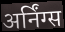
अर्निंग्स